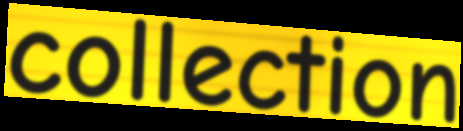
collection